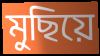
মুছিয়ে